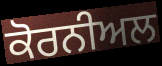
ਕੋਰਨੀਅਲ